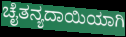
ಚೈತನ್ಯದಾಯಿಯಾಗಿ